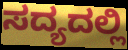
ಸದ್ಯದಲ್ಲಿ